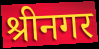
श्रीनगर